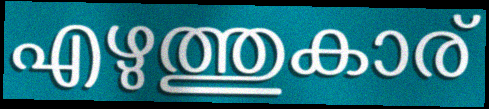
എഴുത്തുകാര്